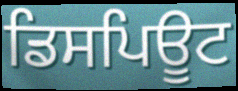
ਡਿਸਪਿਊਟ